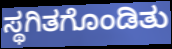
ಸ್ಥಗಿತಗೊಂಡಿತು